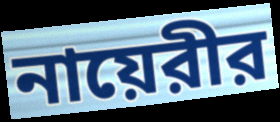
নায়েরীর